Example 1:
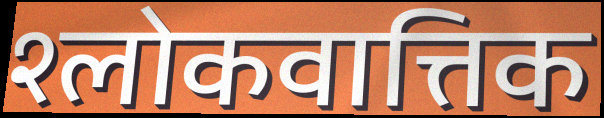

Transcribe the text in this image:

श्लोकवात्तिक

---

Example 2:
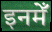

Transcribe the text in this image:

इनमेँ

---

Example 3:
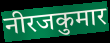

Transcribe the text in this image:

नीरजकुमार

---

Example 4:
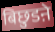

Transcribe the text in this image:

बिछुडऩे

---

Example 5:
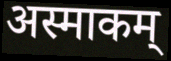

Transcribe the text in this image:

अस्माकम्